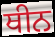
ਥੀਨ